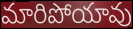
మారిపోయావు